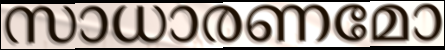
സാധാരണമോ